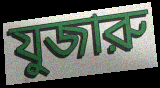
যুজাৰু